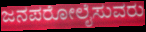
ಜನಪರೋಲೈಸುವರು